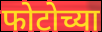
फोटोच्या